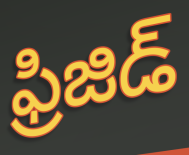
ఫ్రిజిడ్